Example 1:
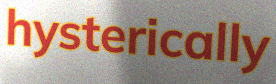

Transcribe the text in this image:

hysterically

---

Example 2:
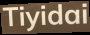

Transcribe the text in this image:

Tiyidai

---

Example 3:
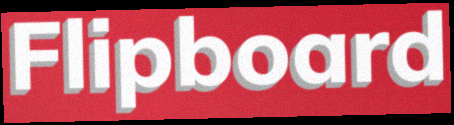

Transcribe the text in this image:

Flipboard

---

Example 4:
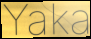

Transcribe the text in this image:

Yaka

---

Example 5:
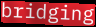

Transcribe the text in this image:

bridging